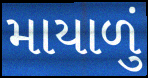
માયાળું